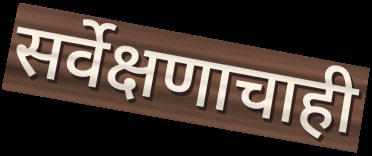
सर्वेक्षणाचाही